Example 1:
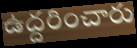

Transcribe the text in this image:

ఉద్దరించారు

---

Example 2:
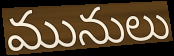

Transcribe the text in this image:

మునులు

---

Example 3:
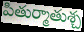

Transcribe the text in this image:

పితుర్మాతుశ్చ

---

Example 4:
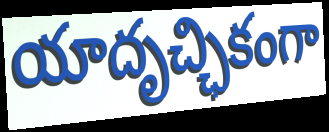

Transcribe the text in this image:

యాదృచ్ఛికంగా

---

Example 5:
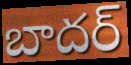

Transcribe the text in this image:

బాదర్